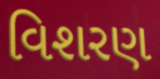
વિશરણ